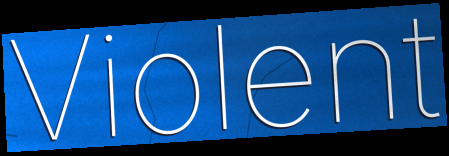
Violent